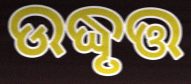
ଉଦ୍ଧୃତ୍ତ